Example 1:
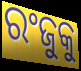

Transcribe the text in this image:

ରଂଜୁକୁ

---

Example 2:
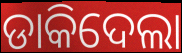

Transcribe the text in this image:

ଡାକିଦେଲା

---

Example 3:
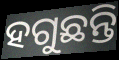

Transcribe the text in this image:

ହଗୁଛନ୍ତି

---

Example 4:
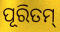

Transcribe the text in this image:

ପୂରିତମ୍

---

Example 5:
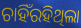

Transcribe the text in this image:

ଚାହିଁରହିଥିଲା